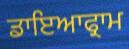
ਡਾਇਆਫ੍ਰਾਮ